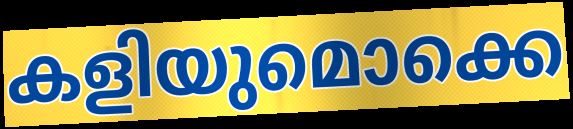
കളിയുമൊക്കെ